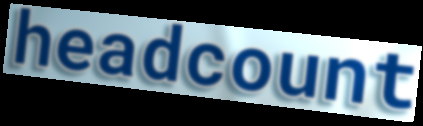
headcount